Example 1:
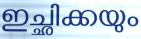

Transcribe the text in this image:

ഇച്ഛിക്കയും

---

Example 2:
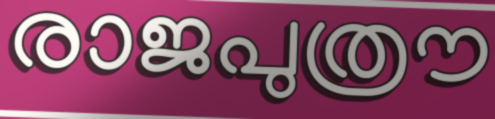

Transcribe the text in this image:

രാജപുത്രൗ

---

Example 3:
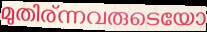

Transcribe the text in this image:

മുതിര്ന്നവരുടെയോ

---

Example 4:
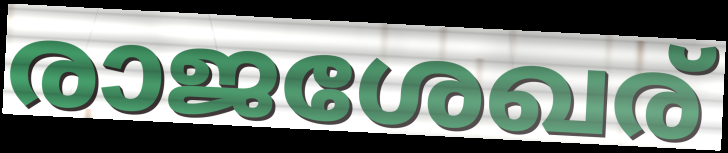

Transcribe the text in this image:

രാജശേഖര്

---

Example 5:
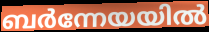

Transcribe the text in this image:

ബർന്നേയയിൽ